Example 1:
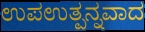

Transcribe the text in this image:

ಉಪಉತ್ಪನ್ನವಾದ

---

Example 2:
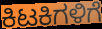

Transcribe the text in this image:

ಕಿಟಕಿಗಳಿಗೆ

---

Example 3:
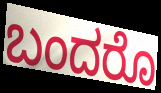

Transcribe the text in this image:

ಬಂದರೊ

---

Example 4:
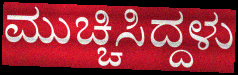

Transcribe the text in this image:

ಮುಚ್ಚಿಸಿದ್ದಳು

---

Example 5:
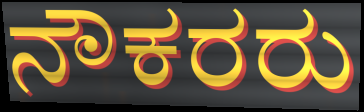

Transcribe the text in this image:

ನೌಕರರು